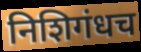
निशिगंधच